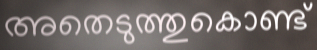
അതെടുത്തുകൊണ്ട്